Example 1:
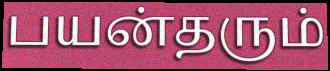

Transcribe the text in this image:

பயன்தரும்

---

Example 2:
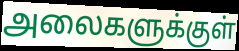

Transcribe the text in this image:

அலைகளுக்குள்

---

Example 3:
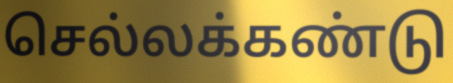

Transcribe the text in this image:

செல்லக்கண்டு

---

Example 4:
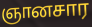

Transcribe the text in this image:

ஞானசார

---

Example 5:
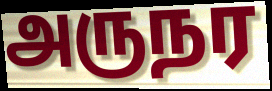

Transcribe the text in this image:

அருநர